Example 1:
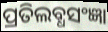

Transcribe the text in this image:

ପ୍ରତିଲବ୍ଧସଂଜ୍ଞା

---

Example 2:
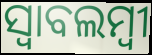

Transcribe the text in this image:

ସ୍ଵାବଲମ୍ଵୀ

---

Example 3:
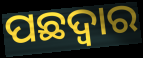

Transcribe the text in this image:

ପଛଦ୍ୱାର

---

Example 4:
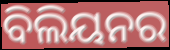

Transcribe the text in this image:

ବିଲିୟନର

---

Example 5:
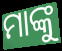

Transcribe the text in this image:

ମାଙ୍କୁ